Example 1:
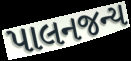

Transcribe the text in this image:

પાલનજન્ય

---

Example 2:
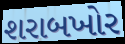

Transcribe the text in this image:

શરાબખોર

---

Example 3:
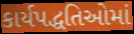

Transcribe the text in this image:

કાર્યપદ્ધતિઓમાં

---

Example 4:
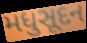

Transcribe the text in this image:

મધુસૂદન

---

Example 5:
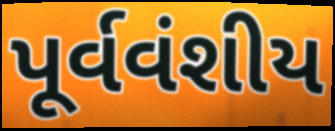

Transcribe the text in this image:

પૂર્વવંશીય